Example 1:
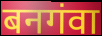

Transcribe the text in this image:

बनगंवा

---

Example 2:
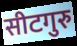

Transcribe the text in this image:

सीटगुरु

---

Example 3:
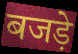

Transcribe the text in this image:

बजड़े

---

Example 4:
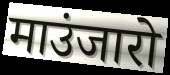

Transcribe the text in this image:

माउंजारो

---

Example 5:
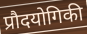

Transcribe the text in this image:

प्रौदयोगिकी